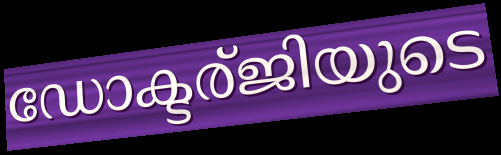
ഡോക്ടര്ജിയുടെ